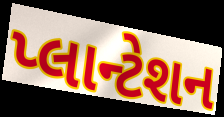
પ્લાન્ટેશન